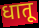
धातू